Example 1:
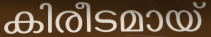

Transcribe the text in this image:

കിരീടമായ്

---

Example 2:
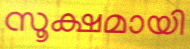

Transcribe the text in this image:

സൂക്ഷമായി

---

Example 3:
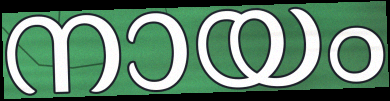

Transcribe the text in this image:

നായം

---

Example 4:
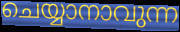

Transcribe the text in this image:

ചെയ്യാനാവുന്ന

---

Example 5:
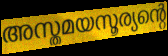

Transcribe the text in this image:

അസ്തമയസൂര്യന്റെ